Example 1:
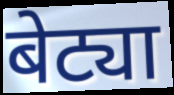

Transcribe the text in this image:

बेट्या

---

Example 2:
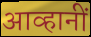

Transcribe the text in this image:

आव्हानीं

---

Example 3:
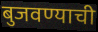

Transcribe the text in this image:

बुजवण्याची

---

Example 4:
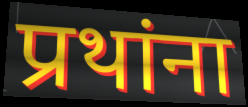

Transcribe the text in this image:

प्रथांना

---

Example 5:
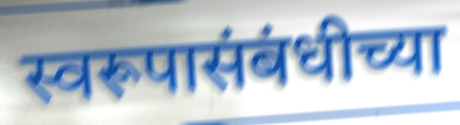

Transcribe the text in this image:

स्वरूपासंबंधीच्या